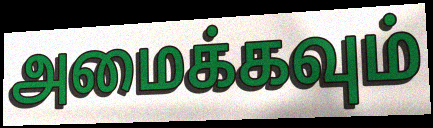
அமைக்கவும்